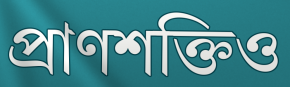
প্রাণশক্তিও